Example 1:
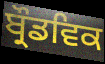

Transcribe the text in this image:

ਬ੍ਰੌਡਵਿਕ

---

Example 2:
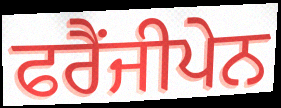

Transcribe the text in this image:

ਫਰੈਂਜੀਪੇਨ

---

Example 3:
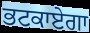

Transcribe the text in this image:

ਭਟਕਾਏਗਾ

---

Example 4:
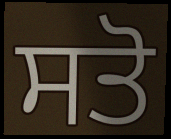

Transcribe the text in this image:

ਸਤੋ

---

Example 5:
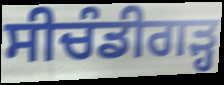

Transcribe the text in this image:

ਸੀਚੰਡੀਗੜ੍ਹ